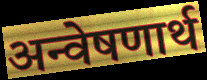
अन्वेषणार्थ